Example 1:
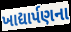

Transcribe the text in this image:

ખાદ્યાર્પણના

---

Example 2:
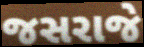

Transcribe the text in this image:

જસરાજે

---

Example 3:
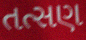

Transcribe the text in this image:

તત્સણ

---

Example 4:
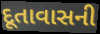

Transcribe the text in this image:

દૂતાવાસની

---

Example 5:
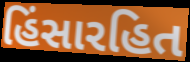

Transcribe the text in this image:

હિંસારહિત